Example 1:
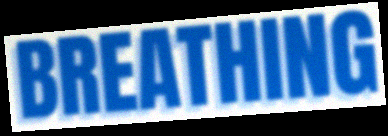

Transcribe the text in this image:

BREATHING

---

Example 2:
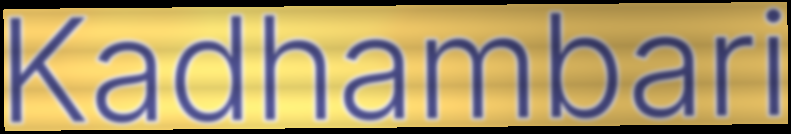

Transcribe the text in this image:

Kadhambari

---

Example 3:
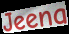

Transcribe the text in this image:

Jeena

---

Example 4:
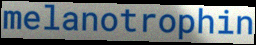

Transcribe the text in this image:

melanotrophin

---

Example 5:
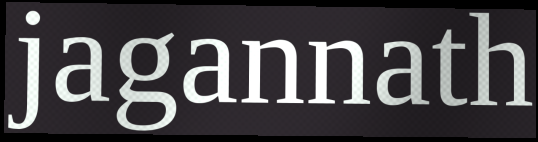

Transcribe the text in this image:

jagannath